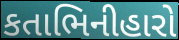
કતાભિનીહારો